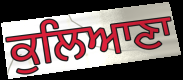
ਕੁਲਿਆਣਾ